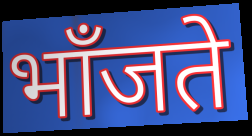
भाँजते